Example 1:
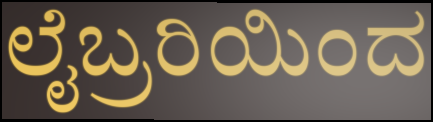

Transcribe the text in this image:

ಲೈಬ್ರರಿಯಿಂದ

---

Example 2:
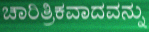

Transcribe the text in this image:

ಚಾರಿತ್ರಿಕವಾದವನ್ನು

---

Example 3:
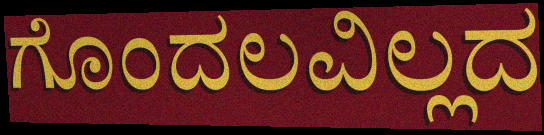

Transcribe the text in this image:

ಗೊಂದಲವಿಲ್ಲದ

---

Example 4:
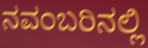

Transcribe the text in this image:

ನವಂಬರಿನಲ್ಲಿ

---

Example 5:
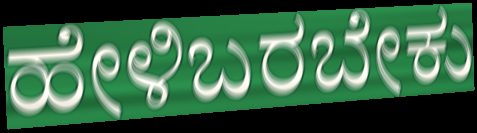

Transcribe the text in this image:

ಹೇಳಿಬರಬೇಕು